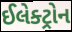
ઈલેક્ટ્રોન